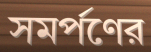
সমর্পণের